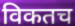
विकतच